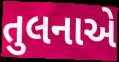
તુલનાએ